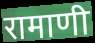
रामाणी